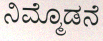
ನಿಮ್ಮೊಡನೆ